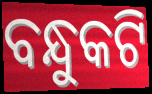
ବନ୍ଧୁକଟି